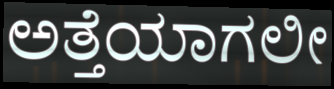
ಅತ್ತೆಯಾಗಲೀ